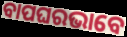
ବାପଘରଭାବେ